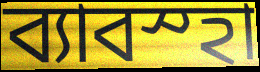
ব্যাবস্হা